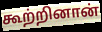
கூற்றினான்